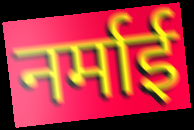
नर्माई